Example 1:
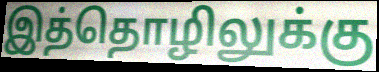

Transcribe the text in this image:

இத்தொழிலுக்கு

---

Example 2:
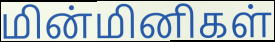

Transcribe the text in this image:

மின்மினிகள்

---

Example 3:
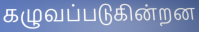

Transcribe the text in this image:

கழுவப்படுகின்றன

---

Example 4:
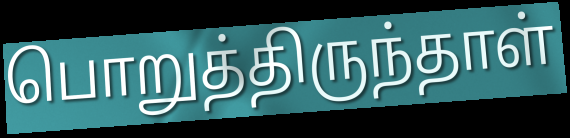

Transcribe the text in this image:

பொறுத்திருந்தாள்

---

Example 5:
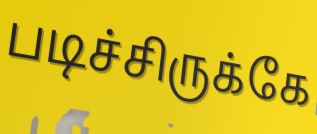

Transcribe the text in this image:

படிச்சிருக்கே